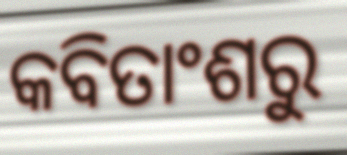
କବିତାଂଶରୁ